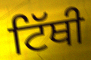
ਟਿੱਥੀ